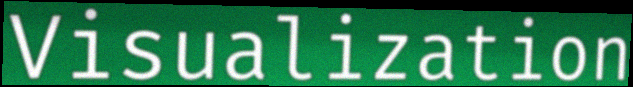
Visualization